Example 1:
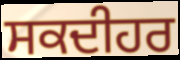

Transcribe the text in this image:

ਸਕਦੀਹਰ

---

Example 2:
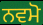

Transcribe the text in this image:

ਨਵਮੋ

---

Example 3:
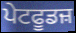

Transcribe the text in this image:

ਪੇਟਫੂਡਜ਼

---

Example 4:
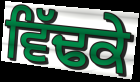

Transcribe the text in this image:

ਵਿੱਢਕੇ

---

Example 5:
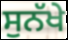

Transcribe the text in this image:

ਸੁਨੱਖੇ